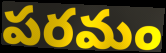
పరమం